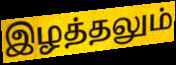
இழத்தலும்